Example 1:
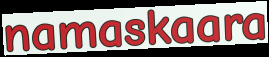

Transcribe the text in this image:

namaskaara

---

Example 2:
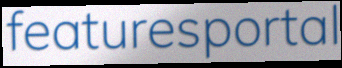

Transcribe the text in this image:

featuresportal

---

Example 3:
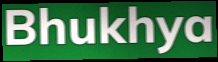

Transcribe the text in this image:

Bhukhya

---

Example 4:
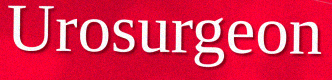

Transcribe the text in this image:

Urosurgeon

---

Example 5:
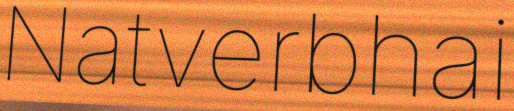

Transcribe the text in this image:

Natverbhai